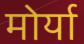
मोर्या